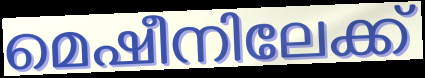
മെഷീനിലേക്ക്